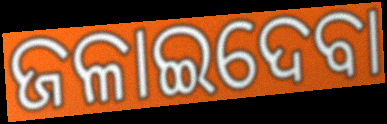
ଜଳାଇଦେବା